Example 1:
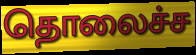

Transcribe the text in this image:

தொலைச்ச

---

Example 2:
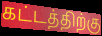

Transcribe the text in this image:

கட்டத்திற்கு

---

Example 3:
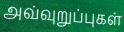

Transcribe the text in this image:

அவ்வுறுப்புகள்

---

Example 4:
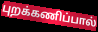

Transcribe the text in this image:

புறக்கணிப்பால்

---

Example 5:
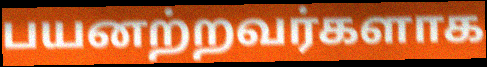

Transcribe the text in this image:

பயனற்றவர்களாக